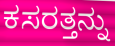
ಕಸರತ್ತನ್ನು